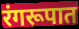
रंगरूपात